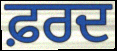
ਫ਼ਰਦ